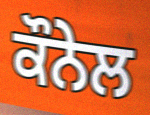
ਕੌਨੇਲ